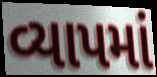
વ્યાપમાં